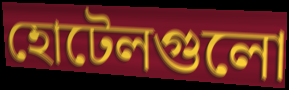
হোটেলগুলো